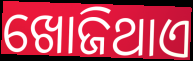
ଖୋଜିଥାଏ